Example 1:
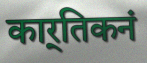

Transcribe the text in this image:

कार्तिकनं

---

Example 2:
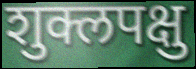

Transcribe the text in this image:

शुक्लपक्षु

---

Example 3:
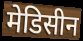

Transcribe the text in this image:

मेडिसीन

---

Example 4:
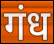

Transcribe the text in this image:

गंध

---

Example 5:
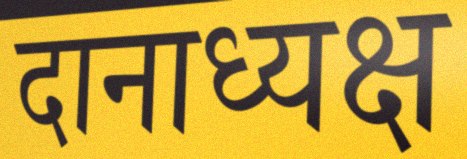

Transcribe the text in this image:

दानाध्यक्ष